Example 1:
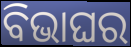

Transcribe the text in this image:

ବିଭାଘର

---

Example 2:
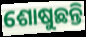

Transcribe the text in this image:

ଶୋଷୁଛନ୍ତି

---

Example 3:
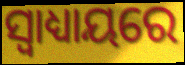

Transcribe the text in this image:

ସ୍ଵାଧ୍ୟାୟରେ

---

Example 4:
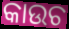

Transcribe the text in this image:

କାଉଚ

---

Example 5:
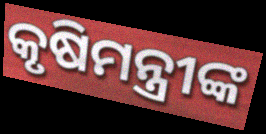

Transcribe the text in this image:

କୃଷିମନ୍ତ୍ରୀଙ୍କ